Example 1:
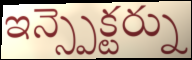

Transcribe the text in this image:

ఇన్స్పెక్టర్ను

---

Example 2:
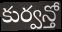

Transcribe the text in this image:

కుర్వన్తో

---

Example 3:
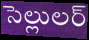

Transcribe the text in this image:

సెల్లులర్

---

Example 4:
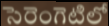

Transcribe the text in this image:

సెరెంగెటిలో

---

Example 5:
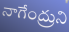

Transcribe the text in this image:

నాగేంద్రుని